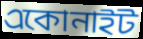
একোনাইট